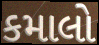
કમાલો